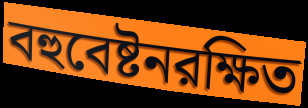
বহুবেষ্টনরক্ষিত